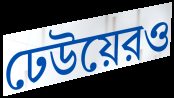
ঢেউয়েরও